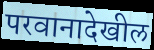
परवानादेखील